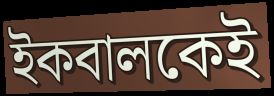
ইকবালকেই